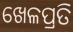
ଖେଳପ୍ରତି